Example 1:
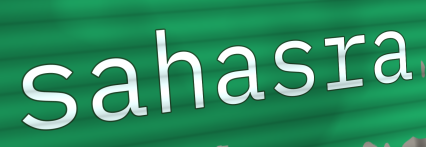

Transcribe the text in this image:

sahasra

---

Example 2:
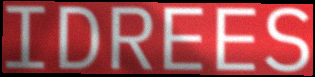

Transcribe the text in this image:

IDREES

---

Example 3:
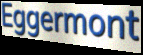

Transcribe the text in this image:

Eggermont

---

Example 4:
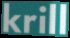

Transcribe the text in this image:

krill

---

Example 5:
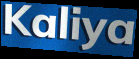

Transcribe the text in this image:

Kaliya